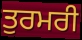
ਤੁਰਮਰੀ